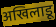
अखिलाडू